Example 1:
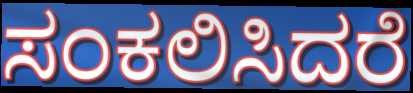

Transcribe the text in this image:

ಸಂಕಲಿಸಿದರೆ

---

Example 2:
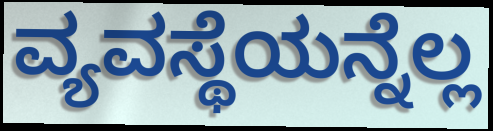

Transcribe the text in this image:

ವ್ಯವಸ್ಥೆಯನ್ನೆಲ್ಲ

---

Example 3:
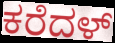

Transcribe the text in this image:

ಕರೆದಳ್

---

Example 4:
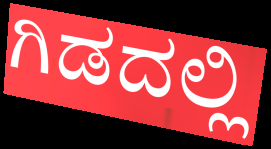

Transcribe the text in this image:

ಗಿಡದಲ್ಲಿ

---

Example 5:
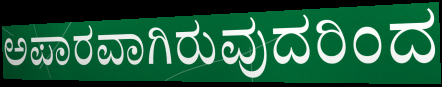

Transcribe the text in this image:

ಅಪಾರವಾಗಿರುವುದರಿಂದ